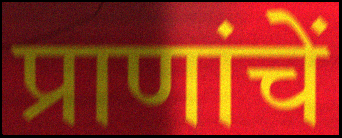
प्राणांचें